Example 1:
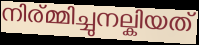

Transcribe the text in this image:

നിര്മ്മിച്ചുനല്കിയത്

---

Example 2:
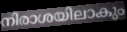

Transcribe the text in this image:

നിരാശയിലാകും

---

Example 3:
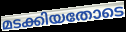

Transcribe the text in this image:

മടക്കിയതോടെ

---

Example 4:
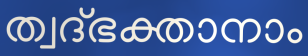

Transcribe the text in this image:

ത്വദ്ഭക്താനാം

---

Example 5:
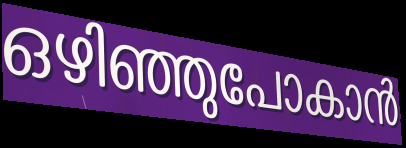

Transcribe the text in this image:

ഒഴിഞ്ഞുപോകാൻ